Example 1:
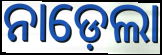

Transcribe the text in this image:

ନାଡ଼େଲା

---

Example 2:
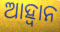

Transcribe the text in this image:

ଆହ୍ୱାନ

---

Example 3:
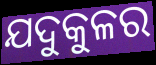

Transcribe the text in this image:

ଯଦୁକୁଳର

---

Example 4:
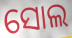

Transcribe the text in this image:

ସୋଲ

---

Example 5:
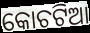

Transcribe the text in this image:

କୋଚଟିଆ